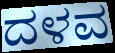
ದಳವ